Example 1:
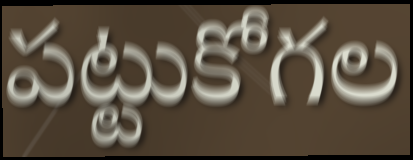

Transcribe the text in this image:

పట్టుకోగల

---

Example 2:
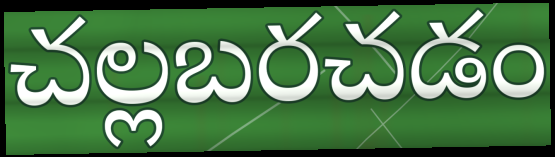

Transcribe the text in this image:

చల్లబరచడం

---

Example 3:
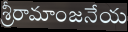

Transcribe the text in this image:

శ్రీరామాంజనేయ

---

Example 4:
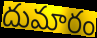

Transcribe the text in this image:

దుమారం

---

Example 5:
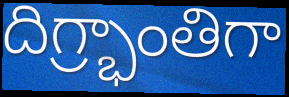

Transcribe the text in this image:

దిగ్ర్భాంతిగా